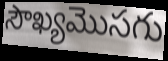
సౌఖ్యమొసగు